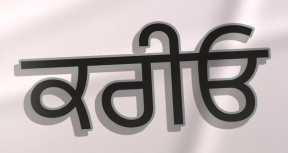
ਕਰੀਓ